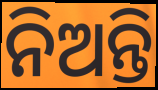
ନିଅନ୍ତି